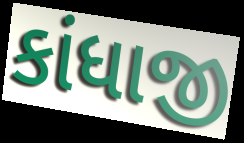
કાંધાજી